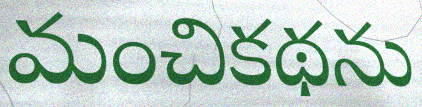
మంచికథను